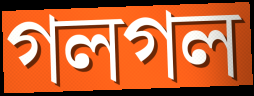
গলগল